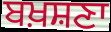
ਬਖ਼ਸ਼ਣਾ